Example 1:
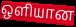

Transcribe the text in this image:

ஒளியான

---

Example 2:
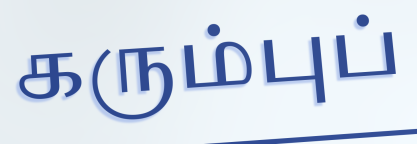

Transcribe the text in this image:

கரும்புப்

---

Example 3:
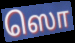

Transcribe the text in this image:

ஸொ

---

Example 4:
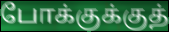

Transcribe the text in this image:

போக்குக்குத்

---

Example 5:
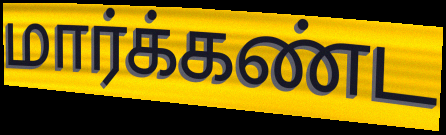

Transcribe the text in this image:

மார்க்கண்ட